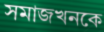
সমাজখনকে